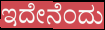
ಇದೇನೆಂದು